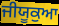
ਜੀਯੂਕੁਆ